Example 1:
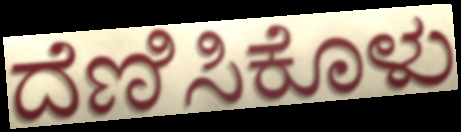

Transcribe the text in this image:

ದೆಣಿಸಿಕೊಳು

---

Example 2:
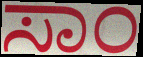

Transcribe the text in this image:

ಸಾಂ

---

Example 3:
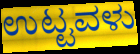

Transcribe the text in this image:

ಉಟ್ಟವಳು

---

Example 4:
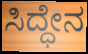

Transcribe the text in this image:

ಸಿದ್ಧೇನ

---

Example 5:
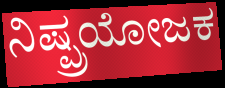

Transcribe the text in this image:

ನಿಷ್ಪ್ರಯೋಜಕ